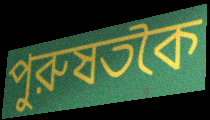
পুৰুষতকৈ